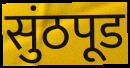
सुंठपूड